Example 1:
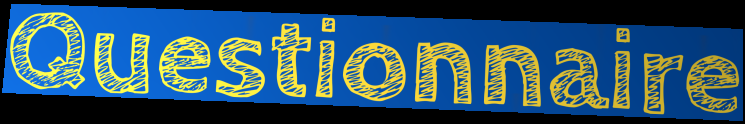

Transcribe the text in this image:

Questionnaire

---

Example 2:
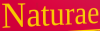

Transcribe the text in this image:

Naturae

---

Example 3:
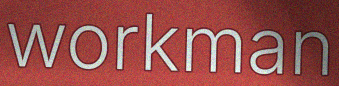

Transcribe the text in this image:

workman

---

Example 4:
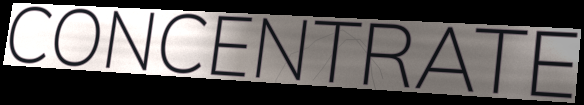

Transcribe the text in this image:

CONCENTRATE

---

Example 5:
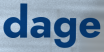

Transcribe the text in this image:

dage